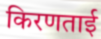
किरणताई